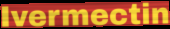
Ivermectin